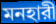
মনহারী